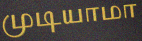
முடியாமா